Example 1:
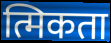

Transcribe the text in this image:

त्मिकता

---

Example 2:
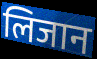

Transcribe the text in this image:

लिजान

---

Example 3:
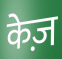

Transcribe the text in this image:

केज़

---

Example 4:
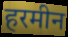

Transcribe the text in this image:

हरमीन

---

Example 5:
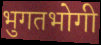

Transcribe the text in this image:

भुगतभोगी